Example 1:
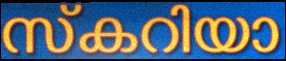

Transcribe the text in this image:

സ്‌കറിയാ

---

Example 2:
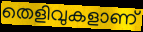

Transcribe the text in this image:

തെളിവുകളാണ്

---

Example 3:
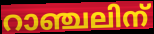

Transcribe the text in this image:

റാഞ്ചലിന്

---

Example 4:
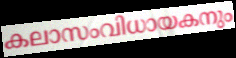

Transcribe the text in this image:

കലാസംവിധായകനും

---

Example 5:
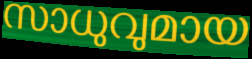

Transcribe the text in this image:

സാധുവുമായ